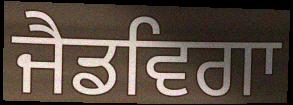
ਜੈਡਵਿਗਾ